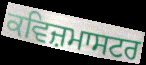
ਕਵਿਜ਼ਮਾਸਟਰ